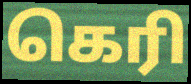
கெரி